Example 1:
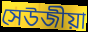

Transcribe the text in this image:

সেউজীয়া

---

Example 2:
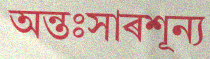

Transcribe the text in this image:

অন্তঃসাৰশূন্য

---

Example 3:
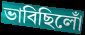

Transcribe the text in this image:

ভাবিছিলোঁ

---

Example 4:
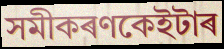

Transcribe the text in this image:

সমীকৰণকেইটাৰ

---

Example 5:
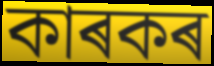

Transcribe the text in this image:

কাৰকৰ